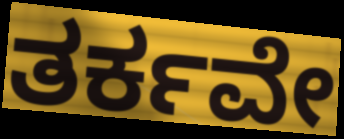
ತರ್ಕವೇ